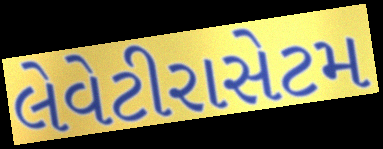
લેવેટીરાસેટમ